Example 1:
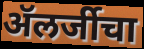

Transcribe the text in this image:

ॲलर्जीचा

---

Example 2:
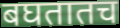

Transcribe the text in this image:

बघतातच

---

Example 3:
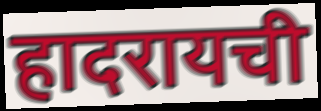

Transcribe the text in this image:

हादरायची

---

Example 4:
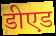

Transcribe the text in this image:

डीएड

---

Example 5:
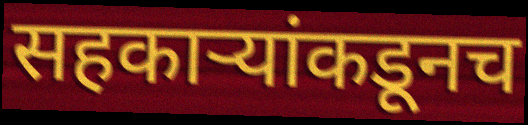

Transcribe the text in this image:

सहकार्‍यांकडूनच